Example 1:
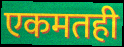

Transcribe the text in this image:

एकमतही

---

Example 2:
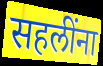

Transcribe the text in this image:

सहलींना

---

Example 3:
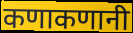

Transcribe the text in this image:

कणाकणानी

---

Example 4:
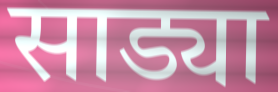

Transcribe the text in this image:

साड्या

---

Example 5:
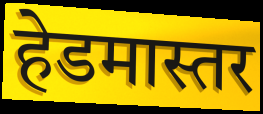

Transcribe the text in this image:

हेडमास्तर